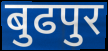
बुढपुर